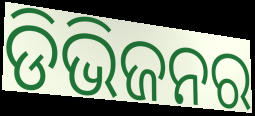
ଡିଭିଜନର